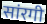
सांरगी